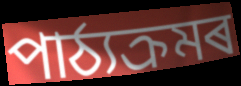
পাঠ্যক্ৰমৰ